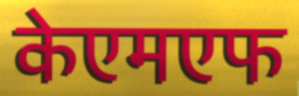
केएमएफ